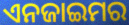
ଏନଜାଇମର